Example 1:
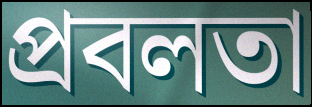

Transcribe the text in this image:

প্ৰবলতা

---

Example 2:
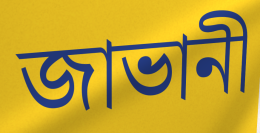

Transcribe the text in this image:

জাভানী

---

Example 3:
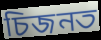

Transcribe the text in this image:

চিজনত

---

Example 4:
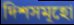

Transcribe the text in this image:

দিশসমূহো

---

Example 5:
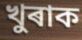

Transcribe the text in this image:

খুৰাক